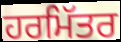
ਹਰਮਿੱਤਰ